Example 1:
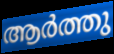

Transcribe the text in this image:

ആർത്തു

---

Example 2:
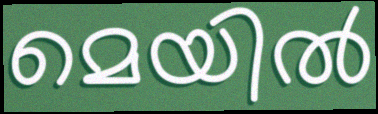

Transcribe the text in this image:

മെയിൽ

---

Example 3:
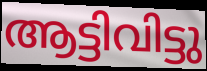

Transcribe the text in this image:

ആട്ടിവിട്ടു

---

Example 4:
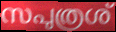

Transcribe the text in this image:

സപുത്രശ്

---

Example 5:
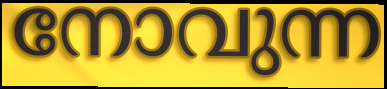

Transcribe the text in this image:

നോവുന്ന